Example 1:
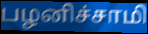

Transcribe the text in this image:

பழனிச்சாமி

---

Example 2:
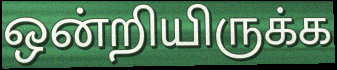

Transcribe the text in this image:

ஒன்றியிருக்க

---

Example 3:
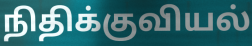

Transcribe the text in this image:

நிதிக்குவியல்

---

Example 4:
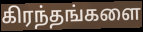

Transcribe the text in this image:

கிரந்தங்களை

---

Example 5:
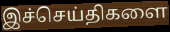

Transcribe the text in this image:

இச்செய்திகளை